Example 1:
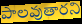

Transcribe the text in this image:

పాలవుతారని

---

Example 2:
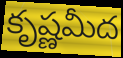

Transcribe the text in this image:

కృష్ణమీద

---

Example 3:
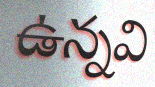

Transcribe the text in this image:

ఉన్నవి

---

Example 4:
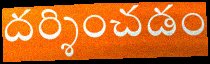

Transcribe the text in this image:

దర్శించడం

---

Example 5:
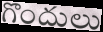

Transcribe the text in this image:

గొందులు